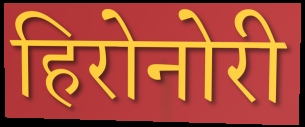
हिरोनोरी